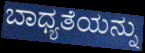
ಬಾಧ್ಯತೆಯನ್ನು